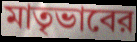
মাতৃভাবের